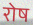
रोष